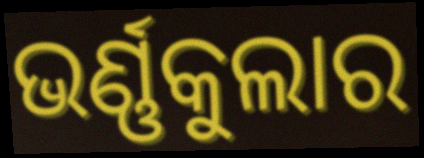
ଭର୍ଣ୍ଣକୁଲାର